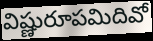
విష్ణురూపమిదివో